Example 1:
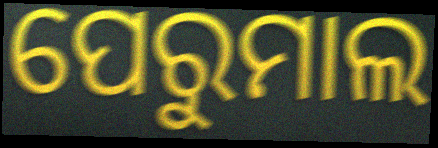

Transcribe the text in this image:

ପେରୁମାଲ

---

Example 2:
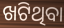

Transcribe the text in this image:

ଖଟିଥିବା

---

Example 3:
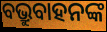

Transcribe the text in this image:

ବଭ୍ରୁବାହନଙ୍କ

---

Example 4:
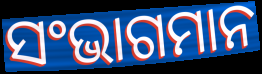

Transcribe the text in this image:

ସଂଭାଗମାନ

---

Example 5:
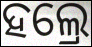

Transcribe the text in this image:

ହଲ୍ରେ